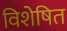
विशेषित